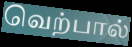
வெற்பால்